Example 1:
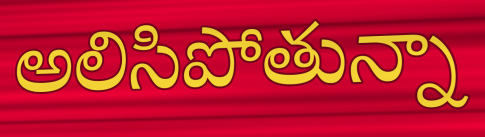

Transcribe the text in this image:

అలిసిపోతున్నా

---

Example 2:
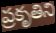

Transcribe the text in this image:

ప్రకృతిని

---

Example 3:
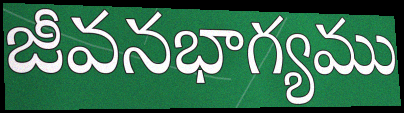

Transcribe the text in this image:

జీవనభాగ్యము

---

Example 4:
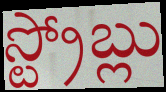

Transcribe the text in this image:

స్ట్రోబ్లు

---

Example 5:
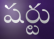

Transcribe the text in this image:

షర్టు